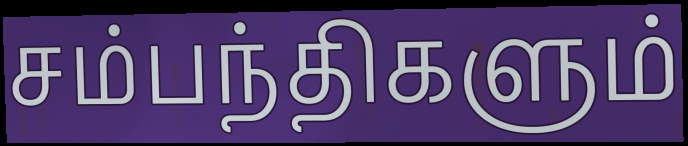
சம்பந்திகளும்